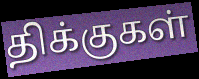
திக்குகள்